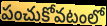
పంచుకోవటంలో